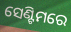
ସେଣ୍ଟିମରେ